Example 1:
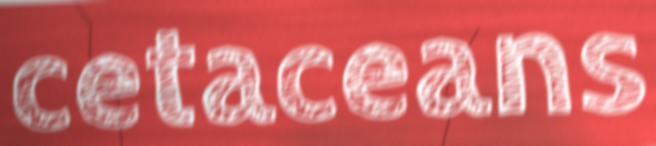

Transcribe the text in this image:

cetaceans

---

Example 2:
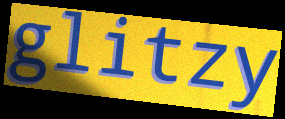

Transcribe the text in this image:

glitzy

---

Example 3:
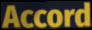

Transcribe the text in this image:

Accord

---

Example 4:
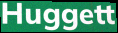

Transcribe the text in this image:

Huggett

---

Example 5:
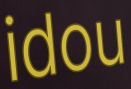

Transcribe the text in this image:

idou